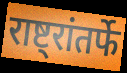
राष्ट्रांतर्फे